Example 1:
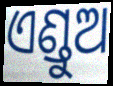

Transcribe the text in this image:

ଏଣ୍ଡୁଅ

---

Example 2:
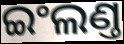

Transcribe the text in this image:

ଇଂଲଣ୍ତ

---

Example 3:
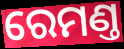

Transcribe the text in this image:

ରେମଣ୍ତ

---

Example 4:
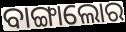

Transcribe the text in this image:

ବାଙ୍ଗାଲୋର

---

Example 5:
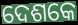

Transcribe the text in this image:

ଦେଶକେ